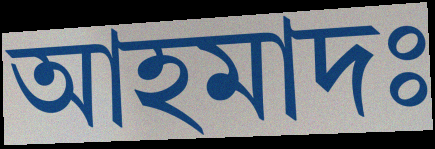
আহমাদঃ